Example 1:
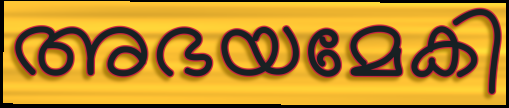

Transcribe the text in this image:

അഭയമേകി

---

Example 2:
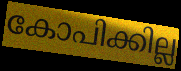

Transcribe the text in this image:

കോപിക്കില്ല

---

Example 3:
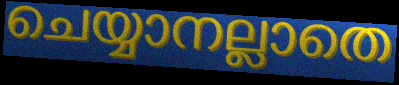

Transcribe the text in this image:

ചെയ്യാനല്ലാതെ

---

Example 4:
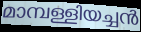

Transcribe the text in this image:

മാമ്പള്ളിയച്ചൻ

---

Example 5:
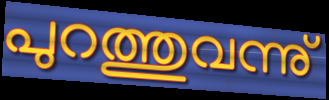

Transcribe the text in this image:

പുറത്തുവന്നു്